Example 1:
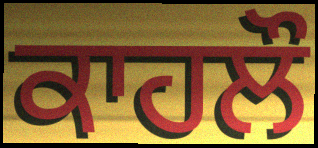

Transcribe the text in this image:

ਕਾਹਲੌ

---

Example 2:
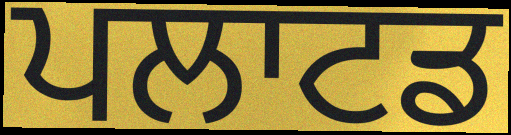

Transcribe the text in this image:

ਪਲਾਟਡ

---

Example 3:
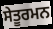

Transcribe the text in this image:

ਸੇਤੂਰਮਨ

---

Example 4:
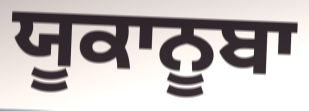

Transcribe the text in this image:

ਯੂਕਾਨੂਬਾ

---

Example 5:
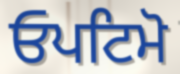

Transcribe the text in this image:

ਓਪਟਿਮੋ